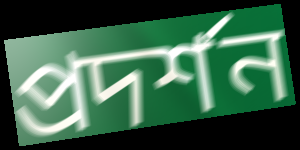
প্রদর্শন